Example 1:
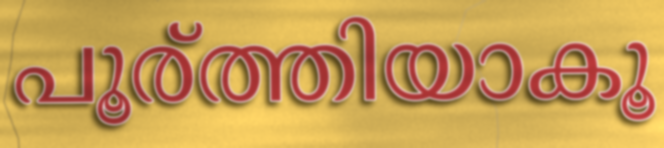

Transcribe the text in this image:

പൂര്ത്തിയാകൂ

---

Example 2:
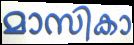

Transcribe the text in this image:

മാസികാ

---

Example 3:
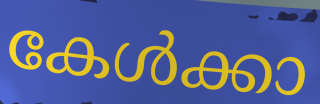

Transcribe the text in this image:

കേൾക്കാ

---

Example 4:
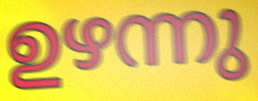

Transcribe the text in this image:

ഉഴന്നു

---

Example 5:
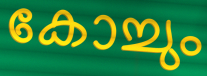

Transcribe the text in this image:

കോച്ചും